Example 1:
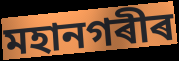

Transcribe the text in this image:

মহানগৰীৰ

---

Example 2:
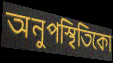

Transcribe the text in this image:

অনুপস্থিতিকো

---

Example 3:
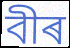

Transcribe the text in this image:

বীৰ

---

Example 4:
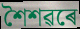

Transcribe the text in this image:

শৈশৱৰে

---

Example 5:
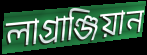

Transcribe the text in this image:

লাগ্ৰাঞ্জিয়ান